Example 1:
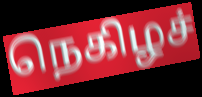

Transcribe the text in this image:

நெகிழச்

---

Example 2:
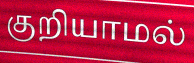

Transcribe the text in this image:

குறியாமல்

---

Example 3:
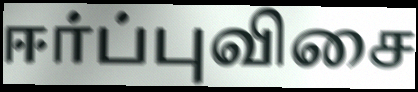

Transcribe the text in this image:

ஈர்ப்புவிசை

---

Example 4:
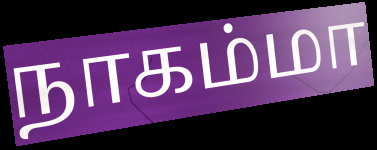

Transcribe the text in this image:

நாகம்மா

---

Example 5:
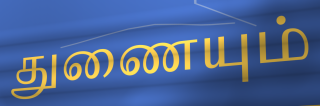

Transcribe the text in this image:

துணையும்